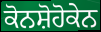
ਕੋਨਸ਼ੋਹੋਕੇਨ